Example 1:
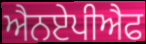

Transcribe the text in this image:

ਐਨਏਪੀਐਫ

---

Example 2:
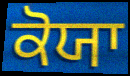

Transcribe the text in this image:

ਕੋਯਾ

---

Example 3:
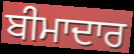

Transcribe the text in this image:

ਬੀਮਾਦਾਰ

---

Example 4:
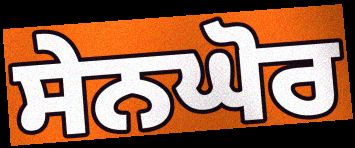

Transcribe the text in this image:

ਸੇਨਘੋਰ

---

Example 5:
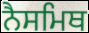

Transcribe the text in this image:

ਨੈਸਮਿਥ